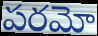
పరమో